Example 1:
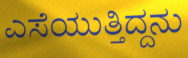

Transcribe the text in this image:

ಎಸೆಯುತ್ತಿದ್ದನು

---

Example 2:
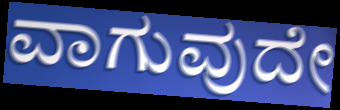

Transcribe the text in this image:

ವಾಗುವುದೇ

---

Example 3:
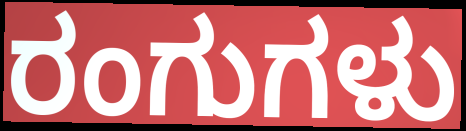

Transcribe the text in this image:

ರಂಗುಗಳು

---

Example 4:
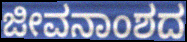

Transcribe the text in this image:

ಜೀವನಾಂಶದ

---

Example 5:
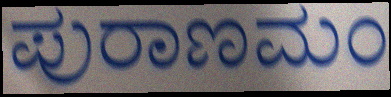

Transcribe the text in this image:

ಪುರಾಣಮಂ